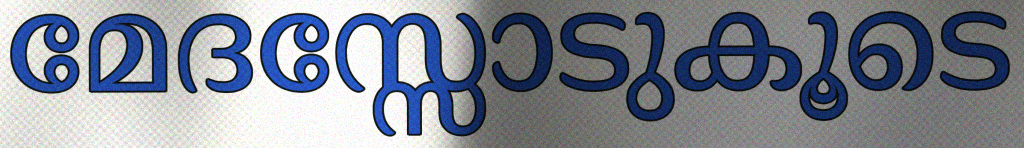
മേദസ്സോടുകൂടെ